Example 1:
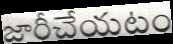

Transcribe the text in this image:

జారీచేయటం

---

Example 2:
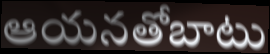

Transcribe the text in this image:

ఆయనతోబాటు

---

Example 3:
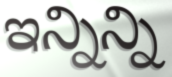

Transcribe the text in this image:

ఇన్నిన్ని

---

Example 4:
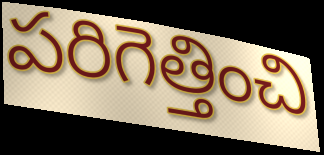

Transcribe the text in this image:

పరిగెత్తించి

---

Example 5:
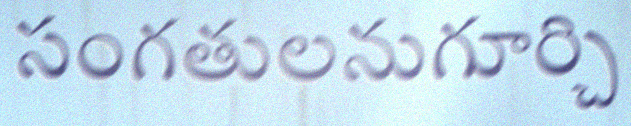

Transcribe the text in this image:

సంగతులనుగూర్చి